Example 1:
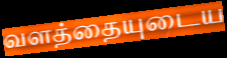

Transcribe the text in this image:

வளத்தையுடைய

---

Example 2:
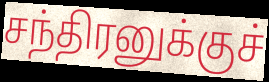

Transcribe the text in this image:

சந்திரனுக்குச்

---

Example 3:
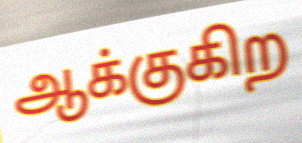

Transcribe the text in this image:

ஆக்குகிற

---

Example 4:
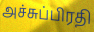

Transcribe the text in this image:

அச்சுப்பிரதி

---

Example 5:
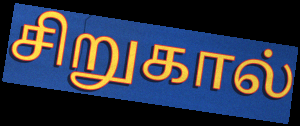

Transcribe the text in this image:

சிறுகால்